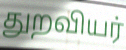
துறவியர்